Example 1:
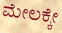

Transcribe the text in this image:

ಮೇಲಕ್ಕೇ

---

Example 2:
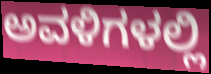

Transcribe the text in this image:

ಅವಳಿಗಳಲ್ಲಿ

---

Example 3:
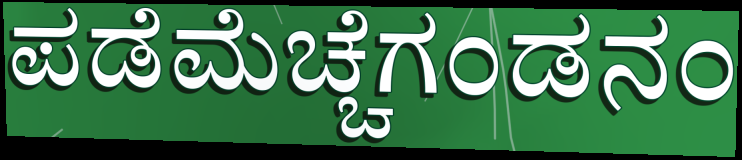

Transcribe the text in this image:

ಪಡೆಮೆಚ್ಚೆಗಂಡನಂ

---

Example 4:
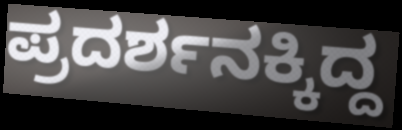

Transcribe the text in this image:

ಪ್ರದರ್ಶನಕ್ಕಿದ್ದ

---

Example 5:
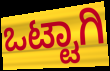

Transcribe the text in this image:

ಒಟ್ಟಾಗಿ